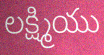
లక్ష్మియు